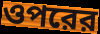
ওপরের